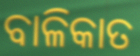
ବାଳିକାତ